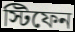
স্টিফেন